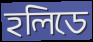
হলিডে